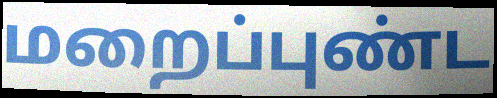
மறைப்புண்ட